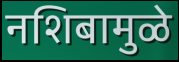
नशिबामुळे